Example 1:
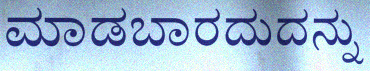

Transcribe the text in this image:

ಮಾಡಬಾರದುದನ್ನು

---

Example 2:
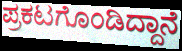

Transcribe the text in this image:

ಪ್ರಕಟಗೊಂಡಿದ್ದಾನೆ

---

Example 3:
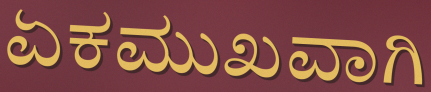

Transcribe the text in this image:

ಏಕಮುಖವಾಗಿ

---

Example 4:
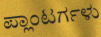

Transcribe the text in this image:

ಪ್ಲಾಂಟರ್ಗಳು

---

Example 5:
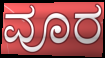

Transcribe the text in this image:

ವೂರ